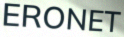
ERONET